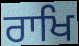
ਰਾਖਿ